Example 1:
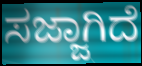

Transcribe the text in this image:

ಸಜ್ಜಾಗಿದೆ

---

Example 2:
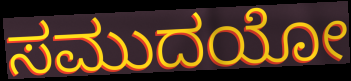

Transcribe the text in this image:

ಸಮುದಯೋ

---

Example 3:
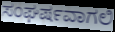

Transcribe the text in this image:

ಸಂಘರ್ಷವಾಗಲಿ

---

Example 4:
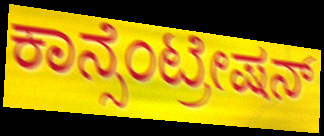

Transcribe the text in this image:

ಕಾನ್ಸೆಂಟ್ರೇಷನ್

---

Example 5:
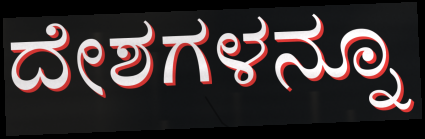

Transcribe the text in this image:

ದೇಶಗಳನ್ನೂ